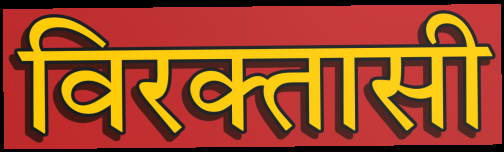
विरक्तासी